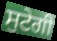
ਸੁਟੇਗੀ